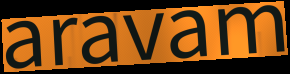
aravam